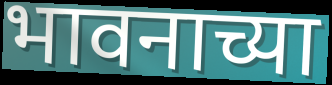
भावनाच्या